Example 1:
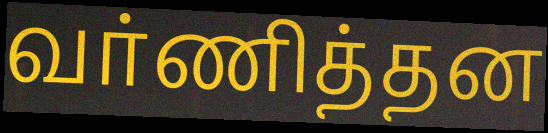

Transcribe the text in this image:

வர்ணித்தன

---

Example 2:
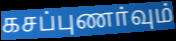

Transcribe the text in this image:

கசப்புணர்வும்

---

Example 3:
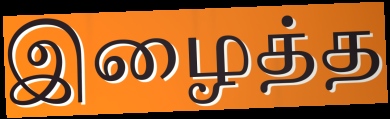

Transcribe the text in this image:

இழைத்த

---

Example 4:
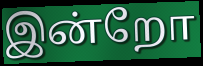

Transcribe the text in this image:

இன்றோ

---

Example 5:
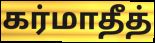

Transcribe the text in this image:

கர்மாதீத்